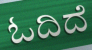
ಓದಿದೆ